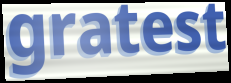
gratest